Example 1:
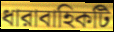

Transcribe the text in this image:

ধারাবাহিকটি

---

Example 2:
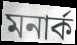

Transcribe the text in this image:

মনার্ক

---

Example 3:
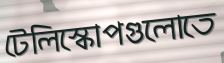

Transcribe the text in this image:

টেলিস্কোপগুলোতে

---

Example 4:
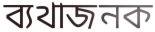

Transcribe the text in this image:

ব্যথাজনক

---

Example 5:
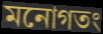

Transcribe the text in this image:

মনোগতং